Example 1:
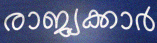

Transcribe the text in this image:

രാജ്യക്കാർ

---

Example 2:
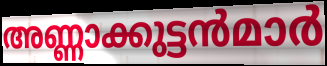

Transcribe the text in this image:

അണ്ണാക്കുട്ടൻമാർ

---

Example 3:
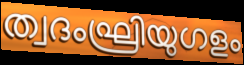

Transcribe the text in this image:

ത്വദംഘ്രിയുഗളം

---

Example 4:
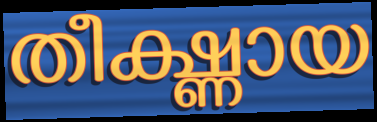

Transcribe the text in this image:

തീക്ഷ്ണായ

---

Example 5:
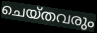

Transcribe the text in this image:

ചെയ്തവരും